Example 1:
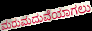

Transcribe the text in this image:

ಮರುಮದುವೆಯಾಗಲು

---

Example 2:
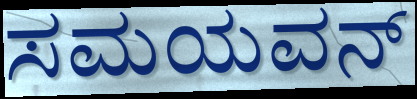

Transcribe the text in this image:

ಸಮಯವನ್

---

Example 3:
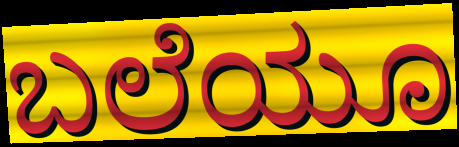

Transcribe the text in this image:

ಬಲೆಯೂ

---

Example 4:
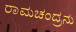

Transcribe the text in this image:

ರಾಮಚಂದ್ರನು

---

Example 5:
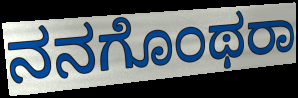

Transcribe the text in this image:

ನನಗೊಂಥರಾ